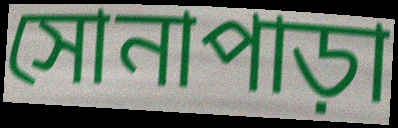
সোনাপাড়া